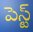
పెస్ట్